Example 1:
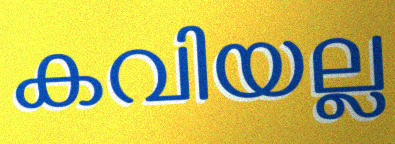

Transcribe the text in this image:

കവിയല്ല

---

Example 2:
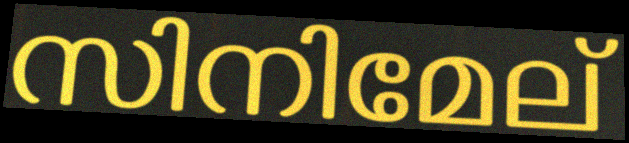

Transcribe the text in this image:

സിനിമേല്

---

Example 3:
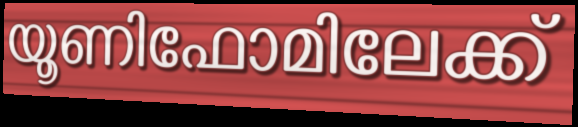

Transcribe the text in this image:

യൂണിഫോമിലേക്ക്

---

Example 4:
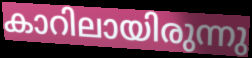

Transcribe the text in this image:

കാറിലായിരുന്നു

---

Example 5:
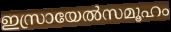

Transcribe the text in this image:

ഇസ്രായേൽസമൂഹം